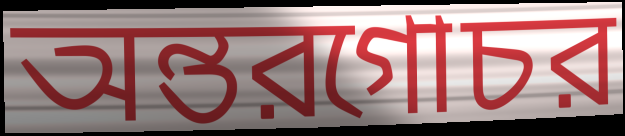
অন্তরগোচর